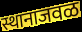
स्थानाजवळ